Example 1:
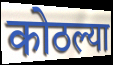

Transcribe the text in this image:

कोठल्या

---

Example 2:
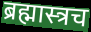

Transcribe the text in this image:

ब्रह्मास्त्रच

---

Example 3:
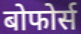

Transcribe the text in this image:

बोफोर्स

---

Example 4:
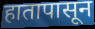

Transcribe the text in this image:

हातापासून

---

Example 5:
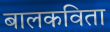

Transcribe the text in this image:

बालकविता